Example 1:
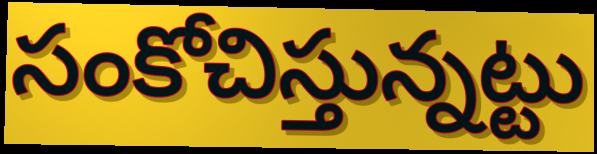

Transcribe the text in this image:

సంకోచిస్తున్నట్టు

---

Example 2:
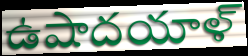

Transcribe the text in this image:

ఉషాదయాళ్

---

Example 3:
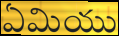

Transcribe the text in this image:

ఏమియు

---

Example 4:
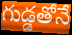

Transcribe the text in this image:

గుడ్డతోనే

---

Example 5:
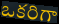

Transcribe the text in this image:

ఒకరిగా